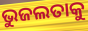
ଭୁଜଲତାକୁ